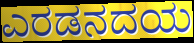
ಎರಡನದಯ